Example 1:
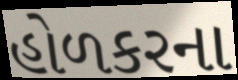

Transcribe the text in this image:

હોળકરના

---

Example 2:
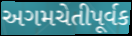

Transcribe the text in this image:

અગમચેતીપૂર્વક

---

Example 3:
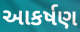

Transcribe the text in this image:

આકર્ષણ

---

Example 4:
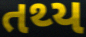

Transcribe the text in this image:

તથ્ય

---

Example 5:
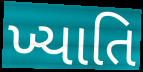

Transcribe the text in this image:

ખ્યાતિ